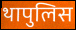
थापुलिस